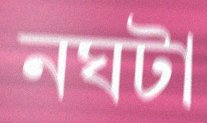
নঘটা